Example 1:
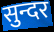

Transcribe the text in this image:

सुन्‍दर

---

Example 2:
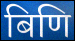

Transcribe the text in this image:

बिणि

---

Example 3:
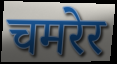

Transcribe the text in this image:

चमरेर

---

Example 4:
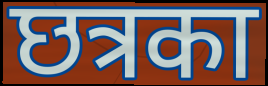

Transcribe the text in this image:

छत्रका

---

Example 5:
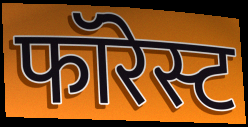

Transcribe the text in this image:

फॉरेस्‍ट